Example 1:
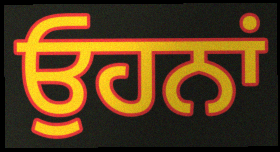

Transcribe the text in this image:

ਓੁਹਨਾਂ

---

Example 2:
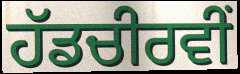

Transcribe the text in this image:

ਹੱਡਚੀਰਵੀਂ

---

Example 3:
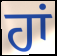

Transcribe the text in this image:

ਹਾਂ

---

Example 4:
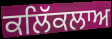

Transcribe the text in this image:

ਕਲਿੱਕਲਾਅ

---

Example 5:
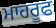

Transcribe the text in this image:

ਮਾਹਰੂਫ